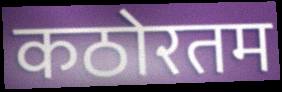
कठोरतम